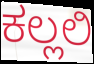
ಕಲ್ಲಲಿ